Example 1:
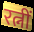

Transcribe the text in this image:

रत्नीं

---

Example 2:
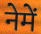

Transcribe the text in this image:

नेमें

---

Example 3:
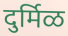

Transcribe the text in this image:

दुर्मिळ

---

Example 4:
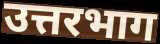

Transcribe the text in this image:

उत्तरभाग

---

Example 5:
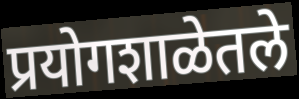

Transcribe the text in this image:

प्रयोगशाळेतले